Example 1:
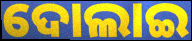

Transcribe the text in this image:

ଦୋଲାଇ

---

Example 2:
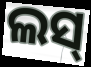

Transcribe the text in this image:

ଲସ୍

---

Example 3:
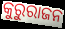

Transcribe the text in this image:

କୁରୁରାଜନ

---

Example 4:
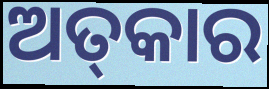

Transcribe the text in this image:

ଅତ୍‌କାର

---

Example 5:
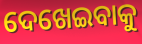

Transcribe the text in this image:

ଦେଖେଇବାକୁ